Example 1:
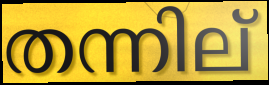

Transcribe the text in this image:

തന്നില്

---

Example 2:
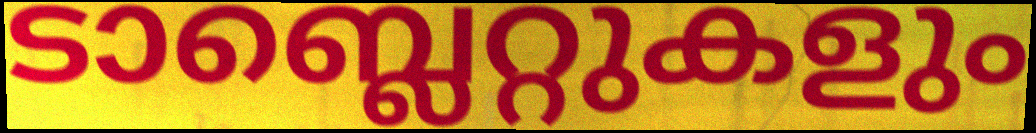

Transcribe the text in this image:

ടാബ്ലെറ്റുകളും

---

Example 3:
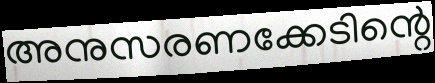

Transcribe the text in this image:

അനുസരണക്കേടിന്റെ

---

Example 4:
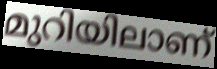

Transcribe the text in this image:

മുറിയിലാണ്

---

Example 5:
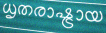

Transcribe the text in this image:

ധൃതരാഷ്ട്രായ